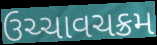
ઉચ્ચાવચક્રમ